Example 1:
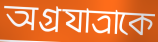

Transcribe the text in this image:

অগ্রযাত্রাকে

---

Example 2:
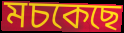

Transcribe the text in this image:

মচকেছে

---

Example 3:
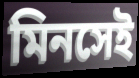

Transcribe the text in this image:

মিনসেই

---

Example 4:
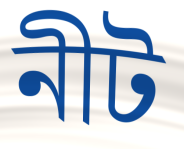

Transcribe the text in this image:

নীট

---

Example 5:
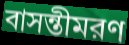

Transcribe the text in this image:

বাসন্তীমরণ